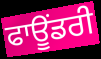
ਫਾਊਂਡਰੀ